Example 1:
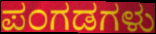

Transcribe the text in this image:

ಪಂಗಡಗಳು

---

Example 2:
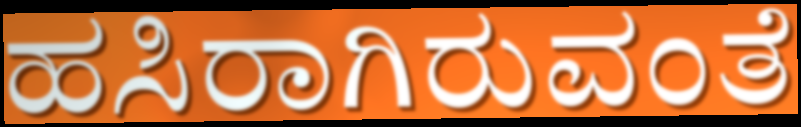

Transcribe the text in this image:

ಹಸಿರಾಗಿರುವಂತೆ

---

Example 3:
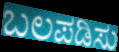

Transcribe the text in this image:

ಬಲಪಡಿಸು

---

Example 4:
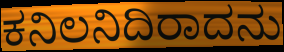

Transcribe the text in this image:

ಕನಿಲನಿದಿರಾದನು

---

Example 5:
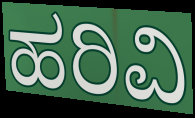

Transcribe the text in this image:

ಹರಿವಿ